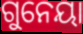
ଗୁନେୟା